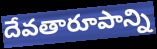
దేవతారూపాన్ని